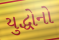
યુદ્ધોનો